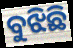
ବୁଝିଛି